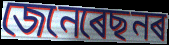
জেনেৰেছনৰ